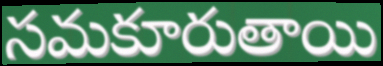
సమకూరుతాయి